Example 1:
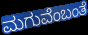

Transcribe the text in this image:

ಮಗುವೆಂಬಂತೆ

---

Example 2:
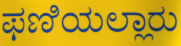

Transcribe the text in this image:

ಫಣಿಯಲ್ಲಾರು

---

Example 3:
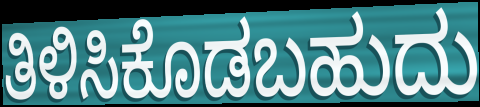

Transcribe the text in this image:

ತಿಳಿಸಿಕೊಡಬಹುದು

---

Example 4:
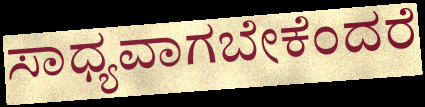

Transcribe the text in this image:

ಸಾಧ್ಯವಾಗಬೇಕೆಂದರೆ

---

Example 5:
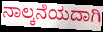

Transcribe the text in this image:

ನಾಲ್ಕನೆಯದಾಗಿ